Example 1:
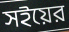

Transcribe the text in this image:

সইয়ের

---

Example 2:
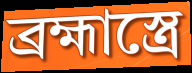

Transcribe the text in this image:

ব্রহ্মাস্ত্রে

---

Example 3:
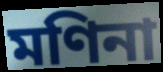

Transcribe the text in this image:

মণিনা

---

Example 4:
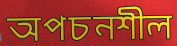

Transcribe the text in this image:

অপচনশীল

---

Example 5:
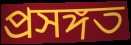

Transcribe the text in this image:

প্রসঙ্গত